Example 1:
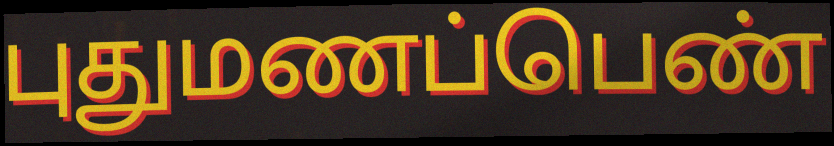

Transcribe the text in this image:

புதுமணப்பெண்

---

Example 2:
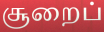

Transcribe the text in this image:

சூறைப்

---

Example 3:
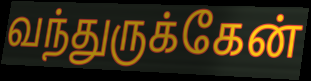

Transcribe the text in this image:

வந்துருக்கேன்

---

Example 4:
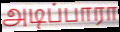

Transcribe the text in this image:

அடிப்பாரா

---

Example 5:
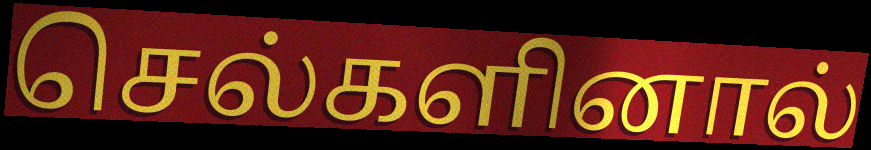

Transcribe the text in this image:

செல்களினால்